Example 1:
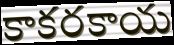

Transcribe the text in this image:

కాకరకాయ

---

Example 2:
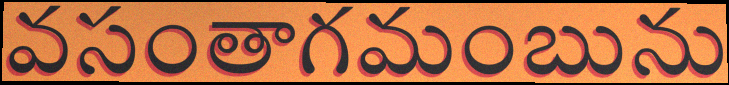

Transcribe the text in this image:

వసంతాగమంబును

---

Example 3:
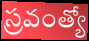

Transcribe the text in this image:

స్రవంత్యో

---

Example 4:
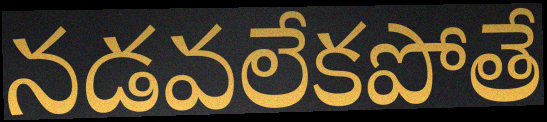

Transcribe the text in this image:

నడవలేకపోతే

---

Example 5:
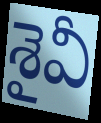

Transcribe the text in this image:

శైవీ